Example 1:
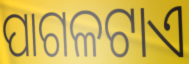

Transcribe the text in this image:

ପାଗଳଟାଏ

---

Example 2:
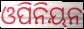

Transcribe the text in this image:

ଓପିନିୟନ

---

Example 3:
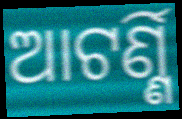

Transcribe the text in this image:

ଆଟର୍ଣ୍ଣି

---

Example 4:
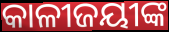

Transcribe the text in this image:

କାଳୀଜୟୀଙ୍କ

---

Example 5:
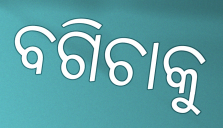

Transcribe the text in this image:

ବଗିଚାକୁ